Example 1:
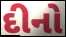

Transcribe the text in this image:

દીનો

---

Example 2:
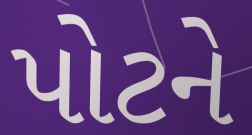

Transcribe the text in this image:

પોટને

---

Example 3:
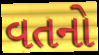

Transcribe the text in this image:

વતનો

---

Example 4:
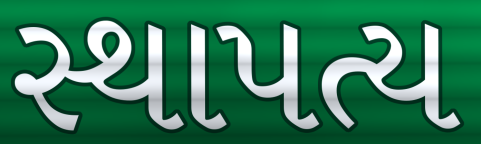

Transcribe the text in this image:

સ્થાપત્ય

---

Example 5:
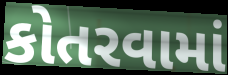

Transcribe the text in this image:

કોતરવામાં